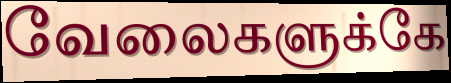
வேலைகளுக்கே